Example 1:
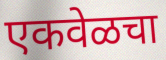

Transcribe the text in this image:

एकवेळचा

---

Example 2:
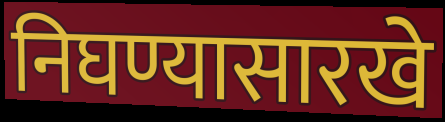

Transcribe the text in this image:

निघण्यासारखे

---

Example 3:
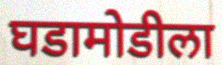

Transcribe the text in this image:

घडामोडीला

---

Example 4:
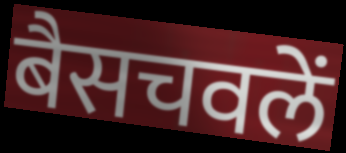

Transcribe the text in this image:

बैसचवलें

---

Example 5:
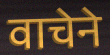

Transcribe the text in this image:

वाचेने